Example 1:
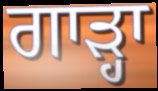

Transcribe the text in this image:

ਗਾੜ੍ਹਾ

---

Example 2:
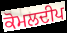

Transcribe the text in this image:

ਕੋਮਲਦੀਪ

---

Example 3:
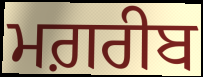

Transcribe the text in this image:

ਮਗ਼ਰੀਬ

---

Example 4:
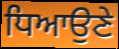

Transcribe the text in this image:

ਧਿਆਉਣੇ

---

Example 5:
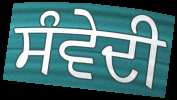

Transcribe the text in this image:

ਸੰਵੇਦੀ